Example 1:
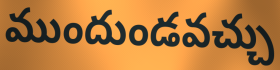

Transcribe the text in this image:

ముందుండవచ్చు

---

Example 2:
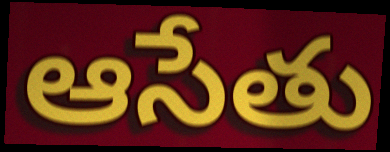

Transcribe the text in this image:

ఆసేతు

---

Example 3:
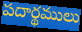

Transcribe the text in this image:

పదార్థములు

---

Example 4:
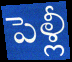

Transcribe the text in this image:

పెళ్లీ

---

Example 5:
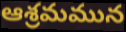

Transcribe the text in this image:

ఆశ్రమమున